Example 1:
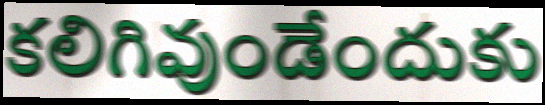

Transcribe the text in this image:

కలిగివుండేందుకు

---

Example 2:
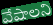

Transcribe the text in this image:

వేషాలని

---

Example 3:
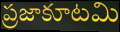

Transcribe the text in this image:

ప్రజాకూటమి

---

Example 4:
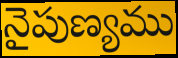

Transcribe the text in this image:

నైపుణ్యము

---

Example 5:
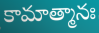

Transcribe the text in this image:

కామాత్మానః